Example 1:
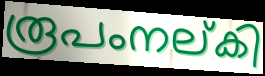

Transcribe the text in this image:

രൂപംനല്കി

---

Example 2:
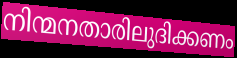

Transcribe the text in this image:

നിന്മനതാരിലുദിക്കണം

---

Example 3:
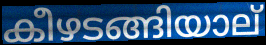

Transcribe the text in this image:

കീഴടങ്ങിയാല്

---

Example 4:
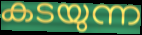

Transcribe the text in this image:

കടയുന്ന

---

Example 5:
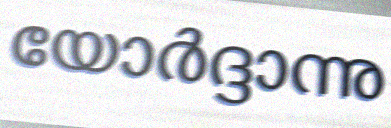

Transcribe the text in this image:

യോർദ്ദാന്നു